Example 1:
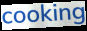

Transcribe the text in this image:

cooking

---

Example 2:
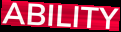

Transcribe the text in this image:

ABILITY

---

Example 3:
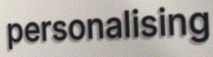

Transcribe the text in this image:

personalising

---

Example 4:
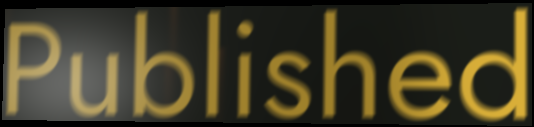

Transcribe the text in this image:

Published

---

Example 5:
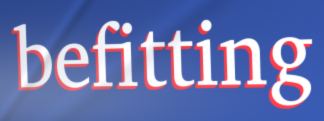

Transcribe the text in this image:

befitting